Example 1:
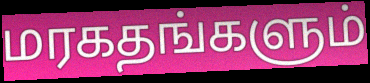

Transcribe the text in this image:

மரகதங்களும்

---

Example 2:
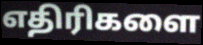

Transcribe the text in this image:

எதிரிகளை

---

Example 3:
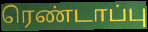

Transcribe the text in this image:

ரெண்டாப்பு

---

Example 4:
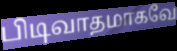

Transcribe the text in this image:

பிடிவாதமாகவே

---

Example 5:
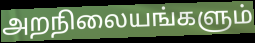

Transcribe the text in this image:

அறநிலையங்களும்